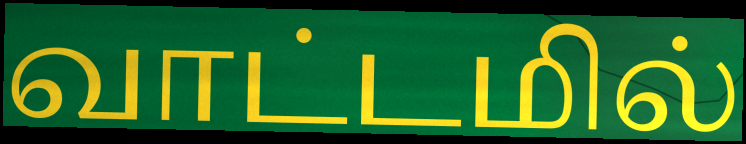
வாட்டமில்